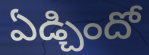
ఏడ్చిందో